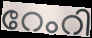
റേംറി